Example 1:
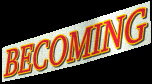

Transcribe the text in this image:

BECOMING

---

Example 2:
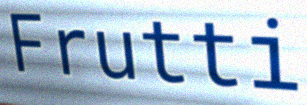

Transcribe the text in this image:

Frutti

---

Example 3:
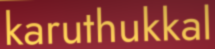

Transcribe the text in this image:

karuthukkal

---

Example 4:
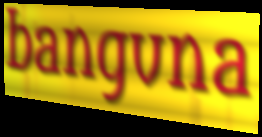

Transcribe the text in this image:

banguna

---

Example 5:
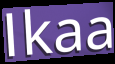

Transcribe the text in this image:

Ikaa